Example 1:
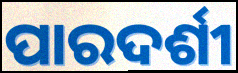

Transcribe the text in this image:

ପାରଦର୍ଶୀ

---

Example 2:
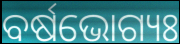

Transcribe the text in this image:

ବର୍ଷଭୋଗ୍ୟଃ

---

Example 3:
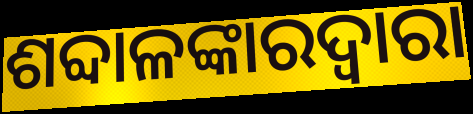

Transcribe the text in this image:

ଶବ୍ଦାଳଙ୍କାରଦ୍ୱାରା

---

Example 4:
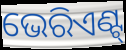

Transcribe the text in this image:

ଭେରିଏଣ୍ଟ୍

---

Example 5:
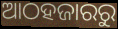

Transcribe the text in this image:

ଆଠହଜାରରୁ